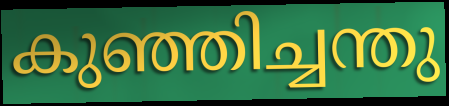
കുഞ്ഞിച്ചന്തു